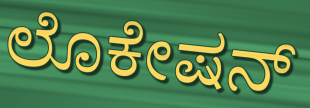
ಲೊಕೇಷನ್